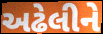
અઢેલીને